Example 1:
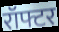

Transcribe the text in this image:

रॉफ्टर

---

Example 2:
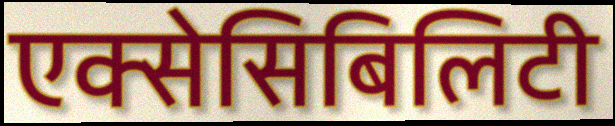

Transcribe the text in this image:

एक्सेसिबिलिटी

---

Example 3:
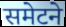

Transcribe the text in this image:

समेटने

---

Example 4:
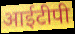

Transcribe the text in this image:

आईटीपी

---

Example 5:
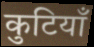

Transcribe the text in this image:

कुटियाँ